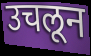
उचलून